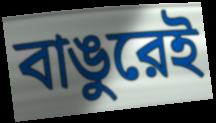
বাঙুরেই